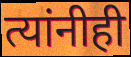
त्यांनीही